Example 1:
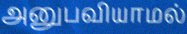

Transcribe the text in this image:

அனுபவியாமல்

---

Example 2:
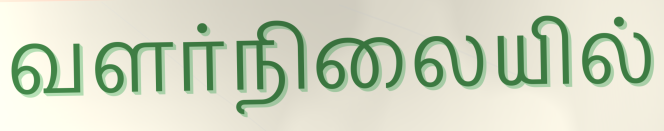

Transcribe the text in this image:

வளர்நிலையில்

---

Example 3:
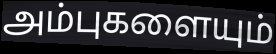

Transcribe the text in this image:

அம்புகளையும்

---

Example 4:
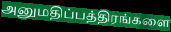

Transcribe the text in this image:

அனுமதிப்பத்திரங்களை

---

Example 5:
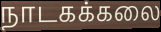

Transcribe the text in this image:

நாடகக்கலை